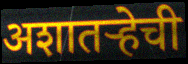
अशातऱ्हेची